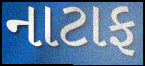
નાટાફ